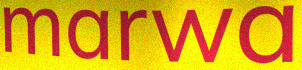
marwa